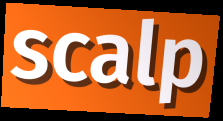
scalp